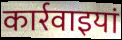
कार्रवाइयां